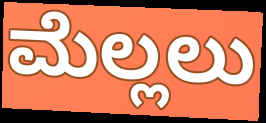
ಮೆಲ್ಲಲು